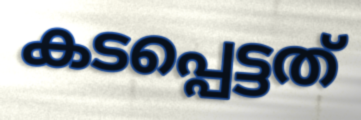
കടപ്പെട്ടത്